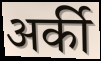
अर्की